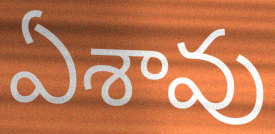
ఏశావు